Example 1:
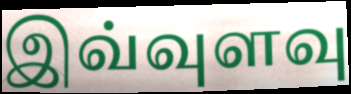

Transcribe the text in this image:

இவ்வுளவு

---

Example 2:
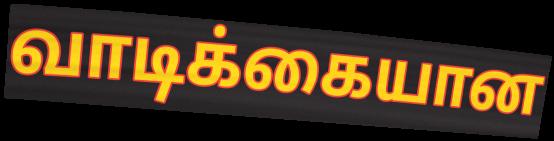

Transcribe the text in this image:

வாடிக்கையான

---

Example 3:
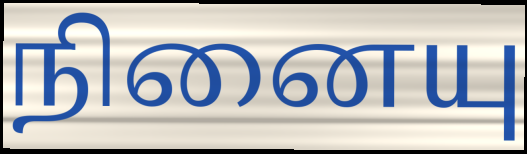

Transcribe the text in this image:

நினையு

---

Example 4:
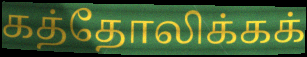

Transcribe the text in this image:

கத்தோலிக்கக்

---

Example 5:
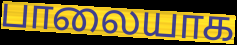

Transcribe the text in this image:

பாலையாக